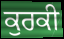
ਕੁਰਕੀ